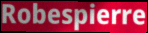
Robespierre